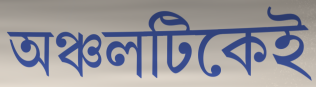
অঞ্চলটিকেই